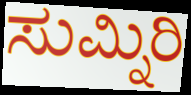
ಸುಮ್ನಿರಿ